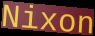
Nixon